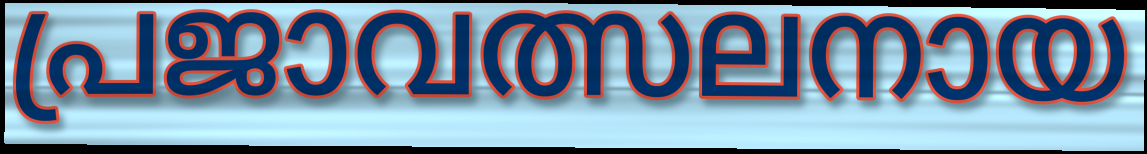
പ്രജാവത്സലനായ